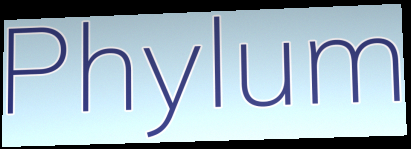
Phylum